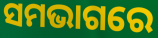
ସମଭାଗରେ